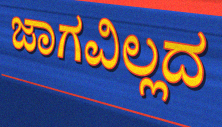
ಜಾಗವಿಲ್ಲದ